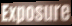
Exposure